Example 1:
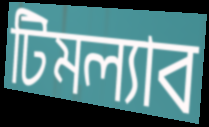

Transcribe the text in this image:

টিমল্যাব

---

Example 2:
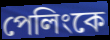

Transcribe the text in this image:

পেলিংকে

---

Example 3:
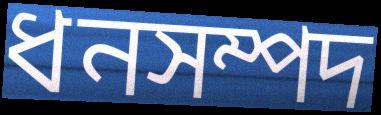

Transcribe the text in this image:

ধনসম্পদ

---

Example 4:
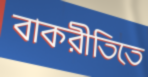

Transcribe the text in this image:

বাকরীতিতে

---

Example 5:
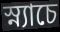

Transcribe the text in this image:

স্ন্যাচে